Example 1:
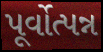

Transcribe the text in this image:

પૂર્વોત્પન્ન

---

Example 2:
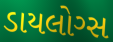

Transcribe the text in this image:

ડાયલોગ્સ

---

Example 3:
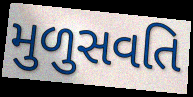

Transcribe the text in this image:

મુળુસવતિ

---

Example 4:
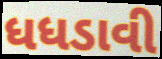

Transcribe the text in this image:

ધધડાવી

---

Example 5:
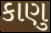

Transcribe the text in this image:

કાણુ